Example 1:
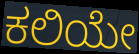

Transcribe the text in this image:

ಕಲಿಯೇ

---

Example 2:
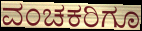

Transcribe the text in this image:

ವಂಚಕರಿಗೂ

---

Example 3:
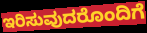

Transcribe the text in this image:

ಇರಿಸುವುದರೊಂದಿಗೆ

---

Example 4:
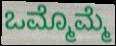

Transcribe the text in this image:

ಒಮ್ಮೊಮ್ಮೆ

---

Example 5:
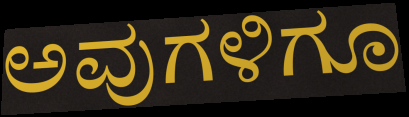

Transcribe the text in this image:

ಅವುಗಳಿಗೂ